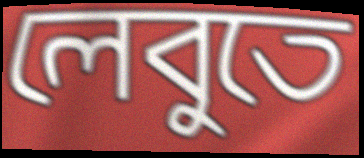
লেবুতে